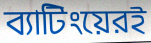
ব্যাটিংয়েরই